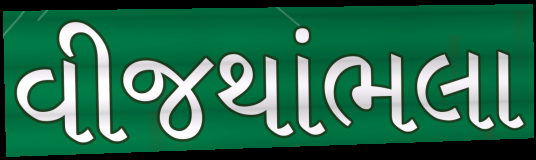
વીજથાંભલા